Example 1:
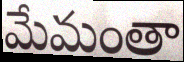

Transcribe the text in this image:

మేమంతా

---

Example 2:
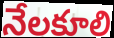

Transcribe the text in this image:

నేలకూలి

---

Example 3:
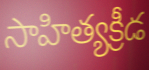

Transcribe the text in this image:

సాహిత్యక్రీడ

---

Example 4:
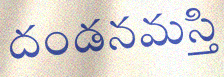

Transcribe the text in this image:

దండనమస్తి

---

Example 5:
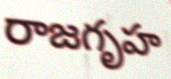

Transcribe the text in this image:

రాజగృహ